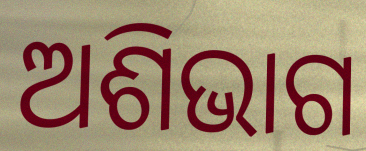
ଅଶିଭାଗ